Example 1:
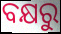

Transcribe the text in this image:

ବକ୍ଷରୁ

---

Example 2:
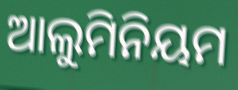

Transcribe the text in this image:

ଆଲୁମିନିୟମ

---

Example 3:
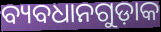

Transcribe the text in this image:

ବ୍ୟବଧାନଗୁଡ଼ାକ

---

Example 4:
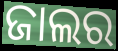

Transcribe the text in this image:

ଜାଲର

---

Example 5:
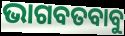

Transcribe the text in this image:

ଭାଗବତବାବୁ